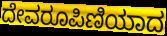
ದೇವರೂಪಿಣಿಯಾದ